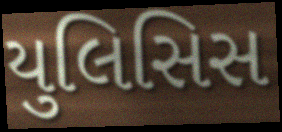
યુલિસિસ